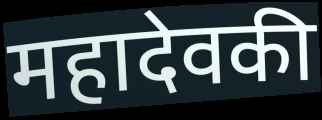
महादेवकी